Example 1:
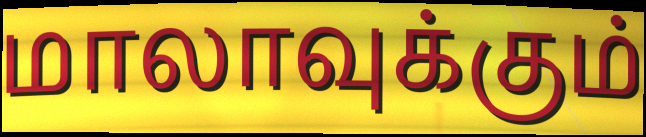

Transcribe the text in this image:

மாலாவுக்கும்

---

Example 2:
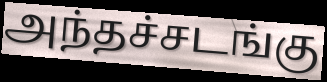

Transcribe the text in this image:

அந்தச்சடங்கு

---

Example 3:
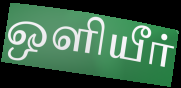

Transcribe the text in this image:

ஒளியீர்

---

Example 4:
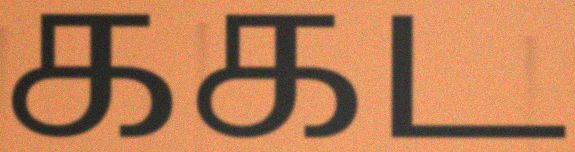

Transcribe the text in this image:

ககட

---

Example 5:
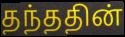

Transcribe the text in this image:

தந்ததின்